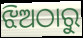
ଝିଅଠାରୁ